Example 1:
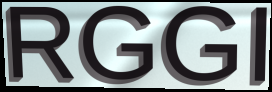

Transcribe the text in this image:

RGGI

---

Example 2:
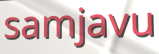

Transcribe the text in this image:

samjavu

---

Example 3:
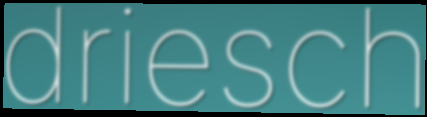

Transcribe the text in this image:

driesch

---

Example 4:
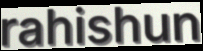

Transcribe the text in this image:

rahishun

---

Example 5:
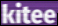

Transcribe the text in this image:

kitee